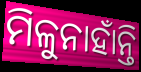
ମିଳୁନାହାଁନ୍ତି